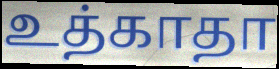
உத்காதா